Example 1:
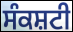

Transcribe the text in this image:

ਸੰਕਸ਼ਟੀ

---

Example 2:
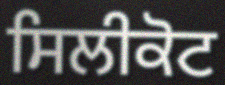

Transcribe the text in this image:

ਸਿਲੀਕੋਟ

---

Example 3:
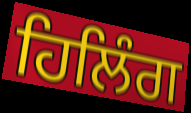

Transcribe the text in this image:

ਹਿਲਿੰਗ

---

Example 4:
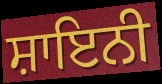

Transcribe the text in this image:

ਸ਼ਾਇਨੀ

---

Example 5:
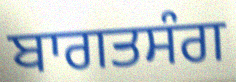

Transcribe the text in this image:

ਬਾਗਤਸੰਗ